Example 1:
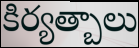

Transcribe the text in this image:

కిర్యత్బాలు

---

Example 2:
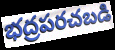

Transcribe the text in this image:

భద్రపరచబడి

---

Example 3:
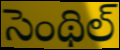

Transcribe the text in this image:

సెంథిల్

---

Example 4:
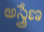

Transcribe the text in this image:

అస్త్రేణ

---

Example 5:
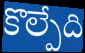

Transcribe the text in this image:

కొల్పేది